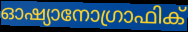
ഓഷ്യാനോഗ്രാഫിക്